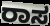
ರಾಸ